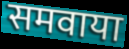
समवाया